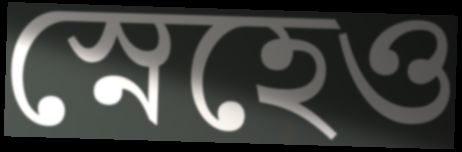
স্নেহেও